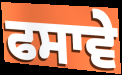
ਫਸਾਵੇ